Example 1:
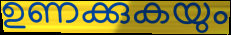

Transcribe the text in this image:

ഉണക്കുകയും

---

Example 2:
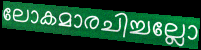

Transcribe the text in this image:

ലോകമാരചിച്ചല്ലോ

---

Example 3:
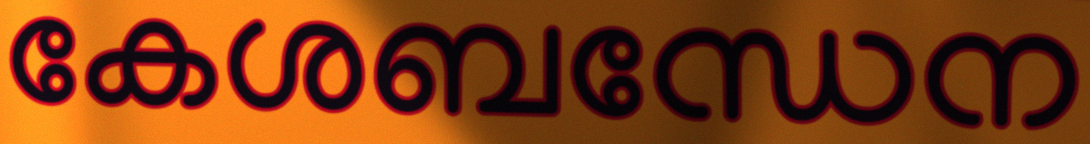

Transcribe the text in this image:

കേശബന്ധേന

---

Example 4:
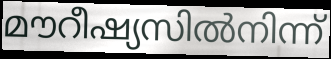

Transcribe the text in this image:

മൗറീഷ്യസിൽനിന്ന്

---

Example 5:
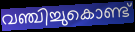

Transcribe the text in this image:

വഞ്ചിച്ചുകൊണ്ട്